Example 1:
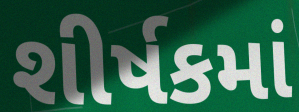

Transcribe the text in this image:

શીર્ષકમાં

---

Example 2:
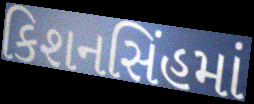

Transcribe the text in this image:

કિશનસિંહમાં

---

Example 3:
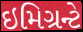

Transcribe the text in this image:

ઇમિગ્રન્ટે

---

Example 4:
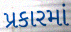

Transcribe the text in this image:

પ્રકારમાં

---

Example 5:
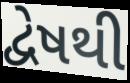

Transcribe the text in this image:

દ્વેષથી